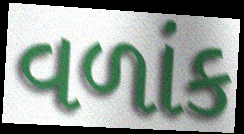
વળાંક